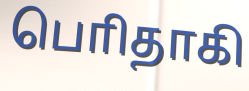
பெரிதாகி